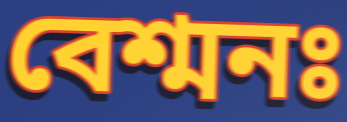
বেশ্মনঃ